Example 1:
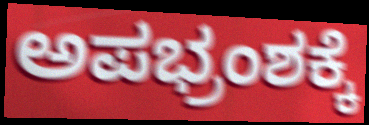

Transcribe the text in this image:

ಅಪಭ್ರಂಶಕ್ಕೆ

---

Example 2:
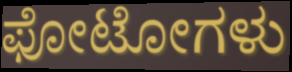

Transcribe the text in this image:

ಫೋಟೋಗಳು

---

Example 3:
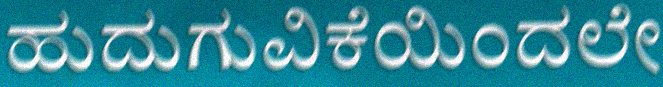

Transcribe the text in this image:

ಹುದುಗುವಿಕೆಯಿಂದಲೇ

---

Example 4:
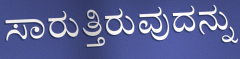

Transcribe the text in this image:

ಸಾರುತ್ತಿರುವುದನ್ನು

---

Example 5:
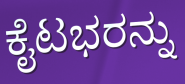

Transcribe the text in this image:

ಕೈಟಭರನ್ನು